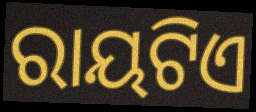
ରାୟଟିଏ